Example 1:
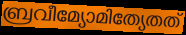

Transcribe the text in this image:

ബ്രവീമ്യോമിത്യേതത്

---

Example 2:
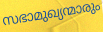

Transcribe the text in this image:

സഭാമുഖ്യന്മാരും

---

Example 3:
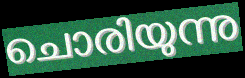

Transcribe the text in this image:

ചൊരിയുന്നു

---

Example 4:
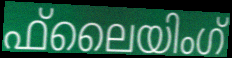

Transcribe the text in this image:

ഫ്‌ലൈയിംഗ്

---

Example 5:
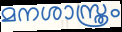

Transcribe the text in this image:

മനശാസ്ത്രം